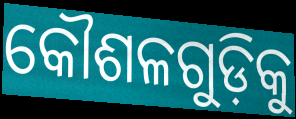
କୌଶଳଗୁଡ଼ିକୁ